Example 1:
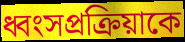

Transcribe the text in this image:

ধ্বংসপ্রক্রিয়াকে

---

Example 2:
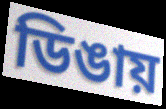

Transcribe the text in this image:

ডিঙায়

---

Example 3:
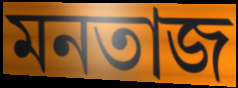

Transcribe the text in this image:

মনতাজ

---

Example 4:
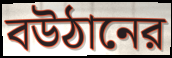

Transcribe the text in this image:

বউঠানের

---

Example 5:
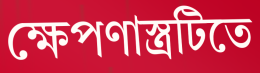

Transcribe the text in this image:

ক্ষেপণাস্ত্রটিতে